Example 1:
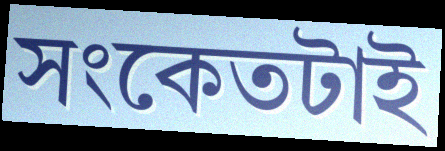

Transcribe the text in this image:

সংকেতটাই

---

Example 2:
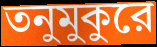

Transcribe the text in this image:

তনুমুকুরে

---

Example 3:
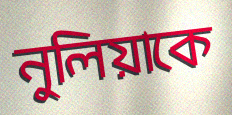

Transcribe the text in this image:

নুলিয়াকে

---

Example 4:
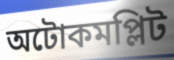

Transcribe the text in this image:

অটোকমপ্লিট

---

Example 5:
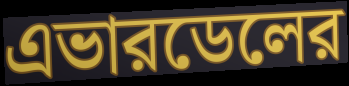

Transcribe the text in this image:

এভারডেলের